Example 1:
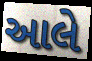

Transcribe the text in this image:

આલે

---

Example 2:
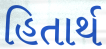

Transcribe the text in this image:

હિતાર્થ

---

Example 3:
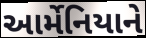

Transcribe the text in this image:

આર્મેનિયાને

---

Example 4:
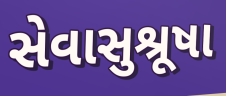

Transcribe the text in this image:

સેવાસુશ્રૂષા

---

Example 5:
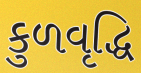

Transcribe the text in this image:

કુળવૃદ્ધિ